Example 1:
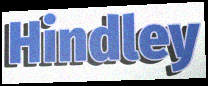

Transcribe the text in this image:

Hindley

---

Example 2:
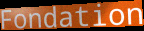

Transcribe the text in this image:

Fondation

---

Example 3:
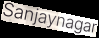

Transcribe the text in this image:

Sanjaynagar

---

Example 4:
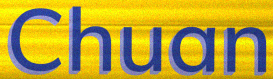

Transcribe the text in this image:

Chuan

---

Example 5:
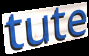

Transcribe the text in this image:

tute